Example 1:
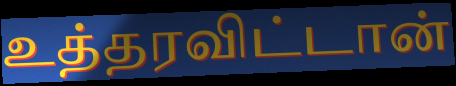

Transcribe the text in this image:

உத்தரவிட்டான்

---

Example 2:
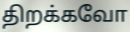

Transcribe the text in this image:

திறக்கவோ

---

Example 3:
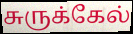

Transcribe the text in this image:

சுருக்கேல்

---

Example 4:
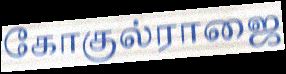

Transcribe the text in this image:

கோகுல்ராஜை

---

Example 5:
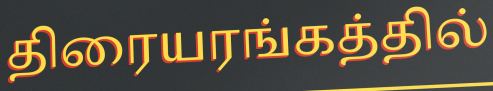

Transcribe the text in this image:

திரையரங்கத்தில்